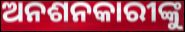
ଅନଶନକାରୀଙ୍କୁ